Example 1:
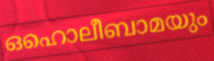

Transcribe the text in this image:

ഒഹൊലീബാമയും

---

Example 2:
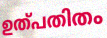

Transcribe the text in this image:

ഉത്പതിതം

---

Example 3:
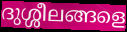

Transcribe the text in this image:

ദുശ്ശീലങ്ങളെ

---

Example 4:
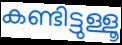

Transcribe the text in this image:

കണ്ടിട്ടുള്ളൂ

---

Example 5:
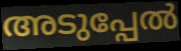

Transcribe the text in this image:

അടുപ്പേൽ